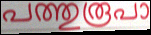
പത്തുരൂപാ